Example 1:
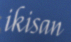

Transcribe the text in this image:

ikisan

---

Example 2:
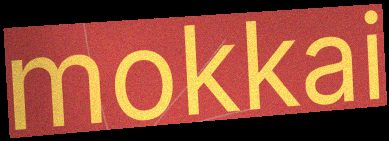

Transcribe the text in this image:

mokkai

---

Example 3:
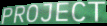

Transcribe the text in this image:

PROJECT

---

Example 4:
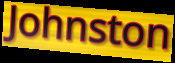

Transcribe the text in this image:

Johnston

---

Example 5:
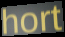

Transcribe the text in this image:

hort